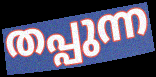
തപ്പുന്ന